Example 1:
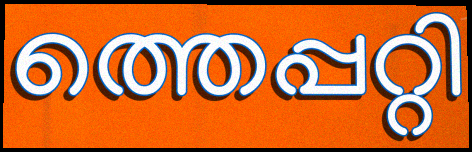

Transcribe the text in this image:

ത്തെപ്പറ്റി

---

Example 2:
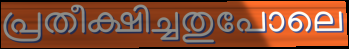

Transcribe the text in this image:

പ്രതീക്ഷിച്ചതുപോലെ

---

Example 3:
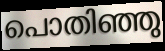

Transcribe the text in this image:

പൊതിഞ്ഞു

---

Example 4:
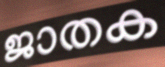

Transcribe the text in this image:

ജാതക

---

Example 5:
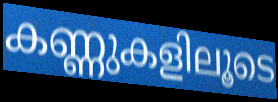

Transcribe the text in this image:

കണ്ണുകളിലൂടെ